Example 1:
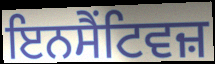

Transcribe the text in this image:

ਇਨਸੈਂਟਿਵਜ਼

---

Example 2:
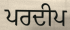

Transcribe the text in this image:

ਪਰਦੀਪ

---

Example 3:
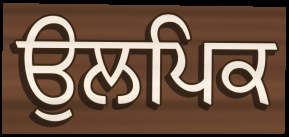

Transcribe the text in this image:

ਉਲਪਿਕ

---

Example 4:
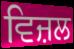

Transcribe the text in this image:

ਵਿਜ਼ਲ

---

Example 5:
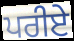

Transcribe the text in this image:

ਪਰੀਏ